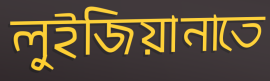
লুইজিয়ানাতে